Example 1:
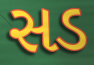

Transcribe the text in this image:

સડ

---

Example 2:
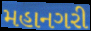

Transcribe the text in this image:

મહાનગરી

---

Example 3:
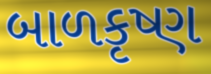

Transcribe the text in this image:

બાળકૃષ્ણ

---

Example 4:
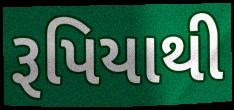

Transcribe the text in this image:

રૂપિયાથી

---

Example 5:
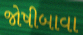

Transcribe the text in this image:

જોષીબાવા